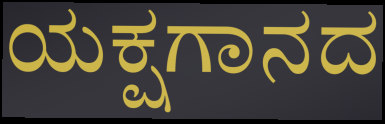
ಯಕ್ಷಗಾನದ